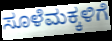
ಸೂಳೆಮಕ್ಕಳಿಗೆ